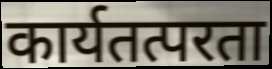
कार्यतत्परता